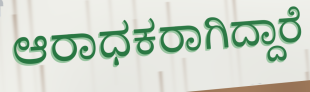
ಆರಾಧಕರಾಗಿದ್ದಾರೆ